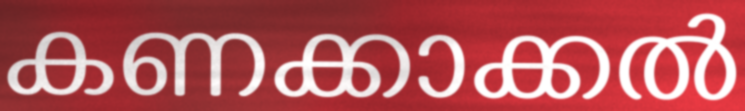
കണക്കാക്കൽ